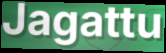
Jagattu